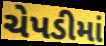
ચેપડીમાં